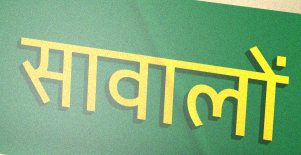
सावालों